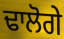
ਢਾਲੋਗੇ